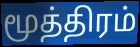
மூத்திரம்